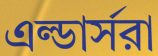
এল্ডার্সরা